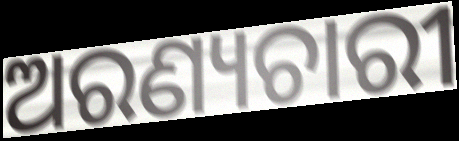
ଅରଣ୍ୟଚାରୀ